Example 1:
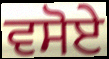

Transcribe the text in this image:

ਵਸੋਏ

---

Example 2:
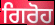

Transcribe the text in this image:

ਗਿਰੋਹ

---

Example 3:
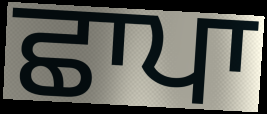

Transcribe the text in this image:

ਛਾਪਾ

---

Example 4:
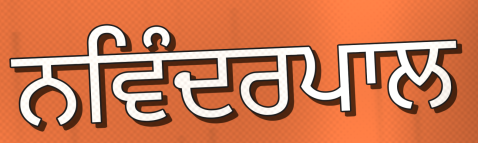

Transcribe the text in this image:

ਨਵਿੰਦਰਪਾਲ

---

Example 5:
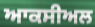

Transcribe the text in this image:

ਆਕਸੀਅਲ